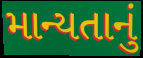
માન્યતાનું